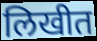
लिखीत